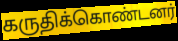
கருதிக்கொண்டனர்